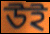
উই